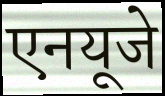
एनयूजे